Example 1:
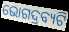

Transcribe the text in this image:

ଭୋଗଦ୍ରବ୍ୟଟି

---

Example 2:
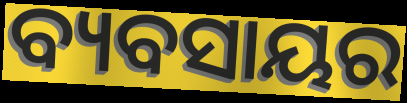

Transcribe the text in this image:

ବ୍ୟବସାୟର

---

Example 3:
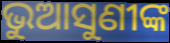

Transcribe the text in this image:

ଭୁଆସୁଣୀଙ୍କ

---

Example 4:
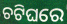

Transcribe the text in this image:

ଚଟିଘରେ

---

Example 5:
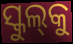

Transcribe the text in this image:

ସ୍କୁଲ୍‌କୁ